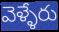
వెళ్ళేరు